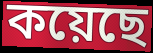
কয়েছে